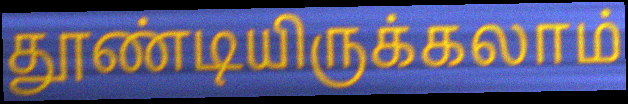
தூண்டியிருக்கலாம்